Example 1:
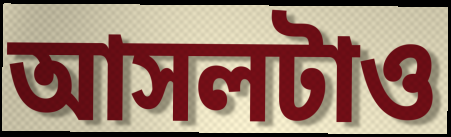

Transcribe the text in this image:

আসলটাও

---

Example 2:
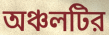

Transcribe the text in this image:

অঞ্চলটির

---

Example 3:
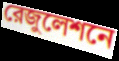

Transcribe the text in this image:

রেজুলেশনে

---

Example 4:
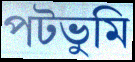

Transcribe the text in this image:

পটভুমি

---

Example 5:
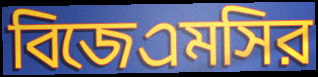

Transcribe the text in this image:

বিজেএমসির